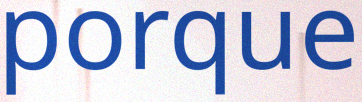
porque